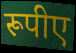
रूपीए